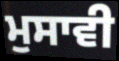
ਮੁਸਾਵੀ